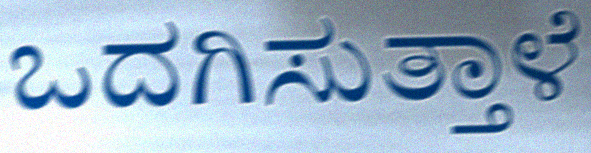
ಒದಗಿಸುತ್ತಾಳೆ